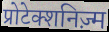
प्रोटेक्शनिज़्म